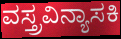
ವಸ್ತ್ರವಿನ್ಯಾಸಕಿ